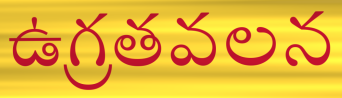
ఉగ్రతవలన